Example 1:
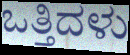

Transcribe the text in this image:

ಒತ್ತಿದಳು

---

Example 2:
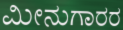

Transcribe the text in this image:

ಮೀನುಗಾರರ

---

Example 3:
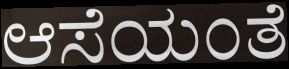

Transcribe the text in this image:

ಆಸೆಯಂತೆ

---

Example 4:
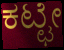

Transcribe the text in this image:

ಕಟ್ಟೇ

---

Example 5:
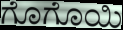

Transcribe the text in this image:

ಗೊಗೊಯಿ